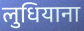
लुधियाना